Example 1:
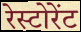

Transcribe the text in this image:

रेस्‍टोरेंट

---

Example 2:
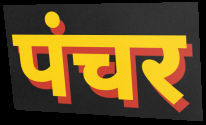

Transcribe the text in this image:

पंचर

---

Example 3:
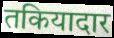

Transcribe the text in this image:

तकियादार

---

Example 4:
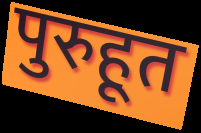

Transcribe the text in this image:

पुरुहूत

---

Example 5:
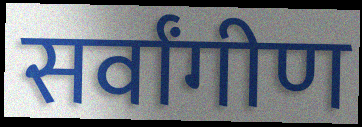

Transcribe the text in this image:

सर्वांगीण